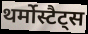
थर्मोस्टैट्स